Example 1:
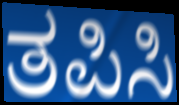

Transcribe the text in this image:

ತಪಿಸಿ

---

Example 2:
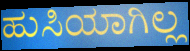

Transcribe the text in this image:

ಹುಸಿಯಾಗಿಲ್ಲ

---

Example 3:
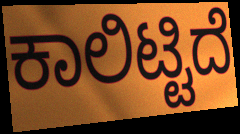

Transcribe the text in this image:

ಕಾಲಿಟ್ಟಿದೆ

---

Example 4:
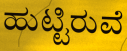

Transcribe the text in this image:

ಹುಟ್ಟಿರುವೆ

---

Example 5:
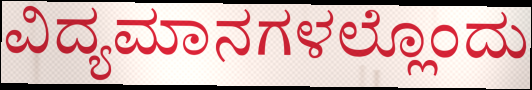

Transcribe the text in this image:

ವಿದ್ಯಮಾನಗಳಲ್ಲೊಂದು